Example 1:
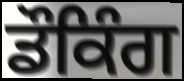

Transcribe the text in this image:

ਡੌਕਿੰਗ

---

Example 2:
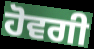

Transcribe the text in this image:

ਹੋਵਗੀ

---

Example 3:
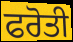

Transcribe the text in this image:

ਫਰੋਤੀ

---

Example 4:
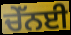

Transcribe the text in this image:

ਚੇੱਨਈ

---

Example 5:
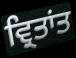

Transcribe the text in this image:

ਵ੍ਰਿਤਾਂਤ